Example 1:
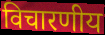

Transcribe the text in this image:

विचारणीय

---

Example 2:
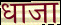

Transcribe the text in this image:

धाजा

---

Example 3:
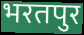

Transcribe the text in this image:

भरतपुर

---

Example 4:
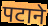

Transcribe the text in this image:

पटाने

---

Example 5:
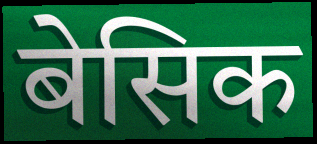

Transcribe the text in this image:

बेसिक